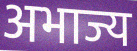
अभाज्य